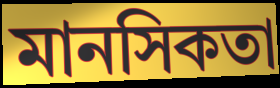
মানসিকতা